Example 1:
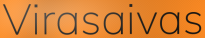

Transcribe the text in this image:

Virasaivas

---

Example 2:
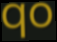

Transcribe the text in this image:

qo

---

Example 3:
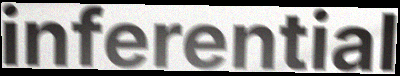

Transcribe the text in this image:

inferential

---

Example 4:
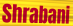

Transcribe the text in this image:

Shrabani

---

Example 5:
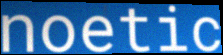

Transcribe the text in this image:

noetic